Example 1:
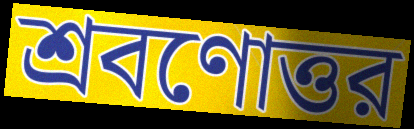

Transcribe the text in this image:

শ্রবণোত্তর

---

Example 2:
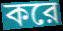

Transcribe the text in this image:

করে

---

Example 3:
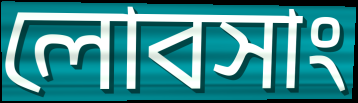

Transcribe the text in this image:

লোবসাং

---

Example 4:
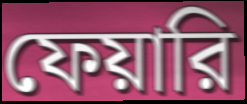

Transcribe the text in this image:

ফেয়ারি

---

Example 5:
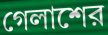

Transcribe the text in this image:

গেলাশের